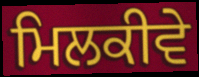
ਮਿਲਕੀਵੇ